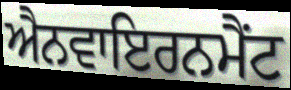
ਐਨਵਾਇਰਨਮੈਂਟ